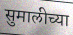
सुमालीच्या